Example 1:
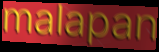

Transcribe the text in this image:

malapan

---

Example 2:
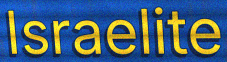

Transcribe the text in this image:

Israelite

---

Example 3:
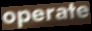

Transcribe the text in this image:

operate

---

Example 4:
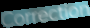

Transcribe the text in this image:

Correction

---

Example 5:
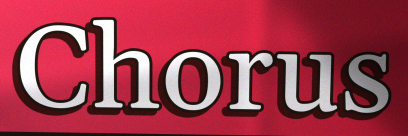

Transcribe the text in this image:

Chorus